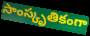
సాంస్కృతికంగా